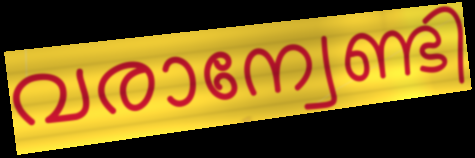
വരാന്വേണ്ടി